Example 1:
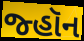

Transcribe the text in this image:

જ્હૉન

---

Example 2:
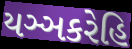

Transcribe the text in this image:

યઞ્ઞકરેહિ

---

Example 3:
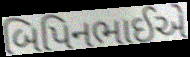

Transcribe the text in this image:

બિપિનભાઈએ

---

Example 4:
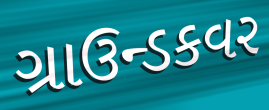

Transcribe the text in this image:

ગ્રાઉન્ડકવર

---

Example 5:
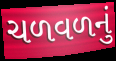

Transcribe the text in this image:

ચળવળનું